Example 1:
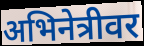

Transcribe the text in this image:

अभिनेत्रीवर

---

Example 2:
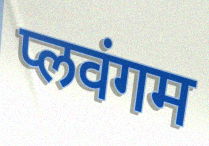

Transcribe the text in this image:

प्लवंगम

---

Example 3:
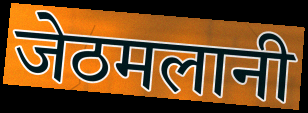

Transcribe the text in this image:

जेठमलानी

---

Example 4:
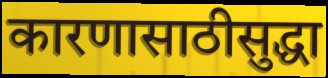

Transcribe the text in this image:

कारणासाठीसुद्धा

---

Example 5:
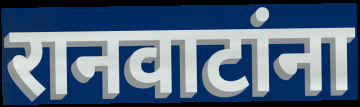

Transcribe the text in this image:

रानवाटांना